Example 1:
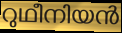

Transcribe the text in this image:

റുഥീനിയൻ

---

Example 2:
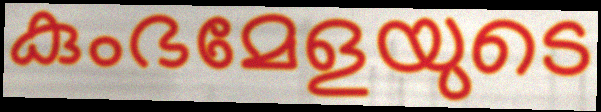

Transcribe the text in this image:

കുംഭമേളയുടെ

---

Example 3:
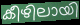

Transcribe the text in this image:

കീഴിലായി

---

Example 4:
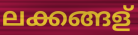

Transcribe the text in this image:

ലക്കങ്ങള്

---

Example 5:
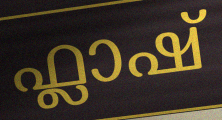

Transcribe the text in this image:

ഫ്ലാഷ്